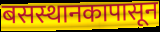
बसस्थानकापासून